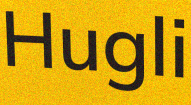
Hugli